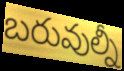
బరువుల్నీ